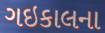
ગઇકાલના